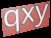
qxy